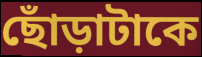
ছোঁড়াটাকে